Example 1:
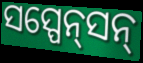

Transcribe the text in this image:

ସସ୍ପେନ୍‌ସନ୍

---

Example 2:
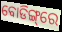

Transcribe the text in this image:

ବୋଡିଙ୍ଗ୍‌ରେ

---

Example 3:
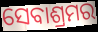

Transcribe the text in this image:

ସେବାଶ୍ରମର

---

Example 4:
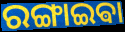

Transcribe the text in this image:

ରଙ୍ଗାଇଵା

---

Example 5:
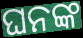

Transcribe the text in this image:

ଘନଙ୍କ